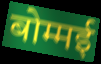
बोम्मई